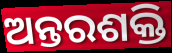
ଅନ୍ତରଶକ୍ତି